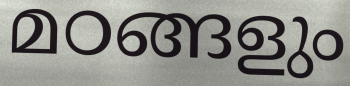
മഠങ്ങളും